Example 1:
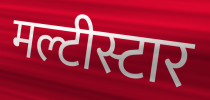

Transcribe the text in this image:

मल्टीस्टार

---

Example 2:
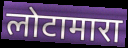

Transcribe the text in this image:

लोटामारा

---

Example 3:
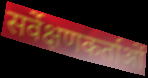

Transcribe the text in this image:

सर्वेक्षणकर्ताओं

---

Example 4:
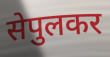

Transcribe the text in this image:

सेपुलकर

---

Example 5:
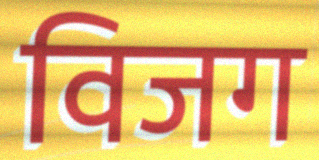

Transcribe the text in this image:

विजग